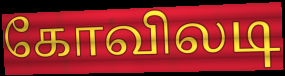
கோவிலடி